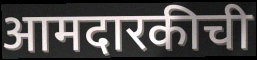
आमदारकीची